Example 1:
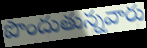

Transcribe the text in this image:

పొందుతున్నవారు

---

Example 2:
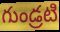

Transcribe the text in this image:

గుండ్రటి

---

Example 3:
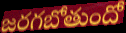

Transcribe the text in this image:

జరగబోతుందో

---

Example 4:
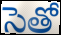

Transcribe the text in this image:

సెతో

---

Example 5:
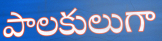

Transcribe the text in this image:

పాలకులుగా